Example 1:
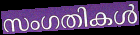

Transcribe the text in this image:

സംഗതികൾ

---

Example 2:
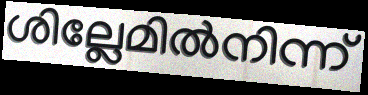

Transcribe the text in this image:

ശില്ലേമിൽനിന്ന്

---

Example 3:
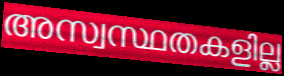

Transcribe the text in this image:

അസ്വസ്ഥതകളില്ല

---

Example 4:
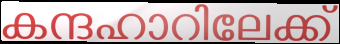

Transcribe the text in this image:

കന്ദഹാറിലേക്ക്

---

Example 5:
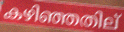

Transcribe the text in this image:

കഴിഞ്ഞതില്